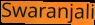
Swaranjali